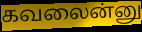
கவலைன்னு